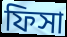
ফিসা